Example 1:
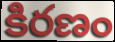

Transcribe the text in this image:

కిరణం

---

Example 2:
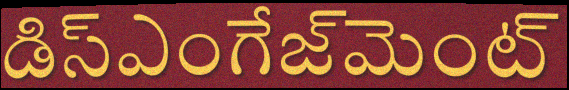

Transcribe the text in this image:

డిస్ఎంగేజ్‌మెంట్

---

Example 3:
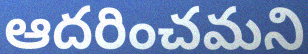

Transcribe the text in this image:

ఆదరించమని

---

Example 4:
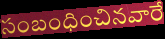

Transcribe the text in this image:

సంబంధించినవారే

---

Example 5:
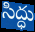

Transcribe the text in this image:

సిద్ధు